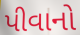
પીવાનો